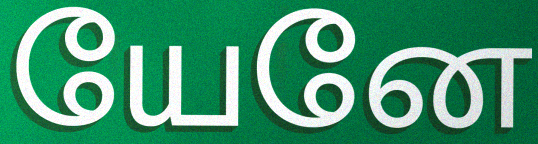
யேனே